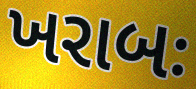
ખરાબઃ